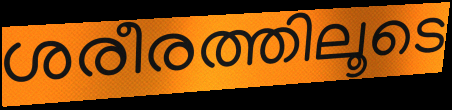
ശരീരത്തിലൂടെ